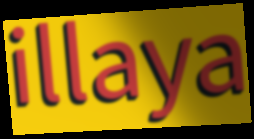
illaya